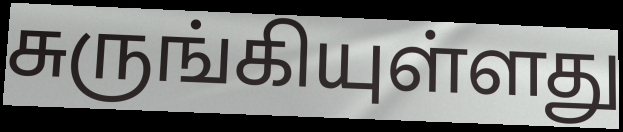
சுருங்கியுள்ளது